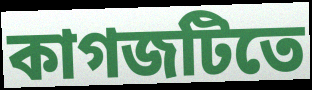
কাগজটিতে